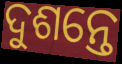
ଦୁଶନ୍ତେ